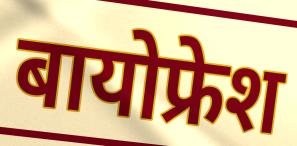
बायोफ्रेश